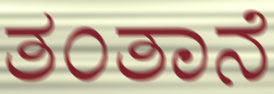
ತಂತಾನೆ